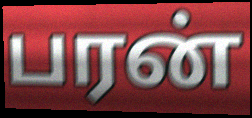
பரன்